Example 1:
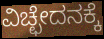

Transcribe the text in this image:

ವಿಚ್ಛೇದನಕ್ಕೆ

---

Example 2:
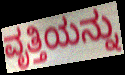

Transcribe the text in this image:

ವೃತ್ತಿಯನ್ನು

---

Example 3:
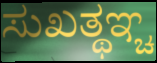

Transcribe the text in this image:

ಸುಖತ್ಥಞ್ಚ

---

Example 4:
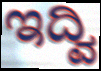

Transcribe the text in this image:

ಇದ್ವಿ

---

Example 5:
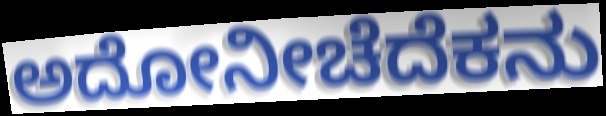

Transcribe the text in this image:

ಅದೋನೀಚೆದೆಕನು